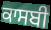
ਕਾਸਬੀ